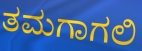
ತಮಗಾಗಲಿ